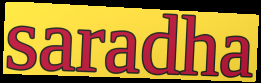
saradha